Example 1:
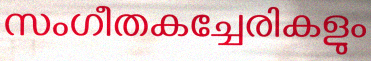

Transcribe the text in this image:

സംഗീതകച്ചേരികളും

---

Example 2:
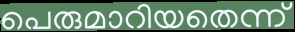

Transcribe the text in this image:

പെരുമാറിയതെന്ന്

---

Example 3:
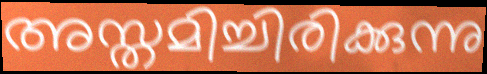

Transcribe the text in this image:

അസ്തമിച്ചിരിക്കുന്നു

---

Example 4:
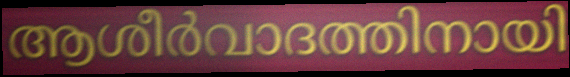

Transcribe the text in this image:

ആശീർവാദത്തിനായി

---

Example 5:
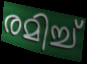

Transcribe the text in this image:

രമിച്ച്